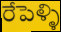
రేపెళ్ళి